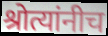
श्रोत्यांनीच